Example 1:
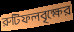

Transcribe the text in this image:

রুটিফলবৃক্ষের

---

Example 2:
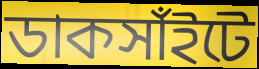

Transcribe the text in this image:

ডাকসাঁইটে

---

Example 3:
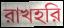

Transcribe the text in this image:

রাখহরি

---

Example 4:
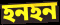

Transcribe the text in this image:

হনহন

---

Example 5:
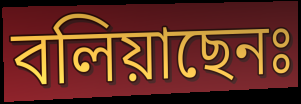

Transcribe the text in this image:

বলিয়াছেনঃ